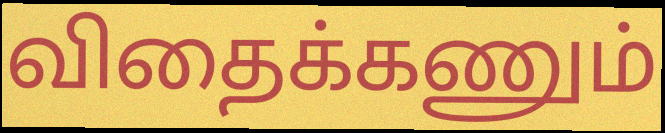
விதைக்கணும்